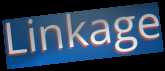
Linkage